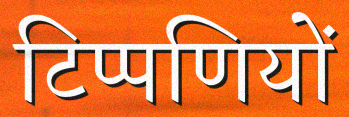
टिप्पणियों